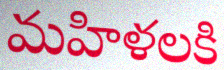
మహిళలకి